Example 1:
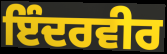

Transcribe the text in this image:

ਇੰਦਰਵੀਰ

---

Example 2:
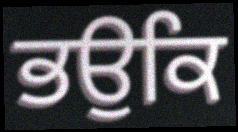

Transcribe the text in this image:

ਭਉਕਿ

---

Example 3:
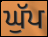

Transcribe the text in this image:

ਘੁੱਪ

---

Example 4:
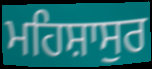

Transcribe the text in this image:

ਮਹਿਸ਼ਾਸੁਰ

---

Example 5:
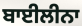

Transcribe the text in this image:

ਬਾਈਲੀਨਾ